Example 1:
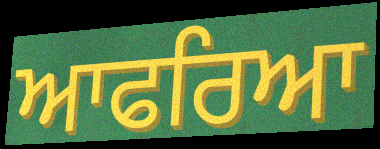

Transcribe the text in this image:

ਆਫਰਿਆ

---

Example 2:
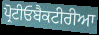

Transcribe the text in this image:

ਪ੍ਰੋਟੀਓਬੈਕਟੀਰੀਆ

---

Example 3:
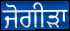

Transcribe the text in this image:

ਜੋਗੀੜਾ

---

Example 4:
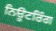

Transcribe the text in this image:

ਨਿਊਟਰਿੰਗ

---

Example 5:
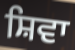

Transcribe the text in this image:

ਸ਼ਿਵਾ